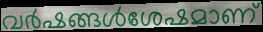
വർഷങ്ങൾശേഷമാണ്